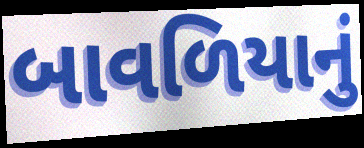
બાવળિયાનું